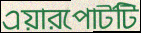
এয়ারপোর্টটি